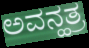
ಅವನ್ಹತ್ರ